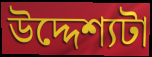
উদ্দেশ্যটা